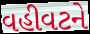
વહીવટને